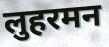
लुहरमन